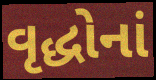
વૃદ્ધોનાં